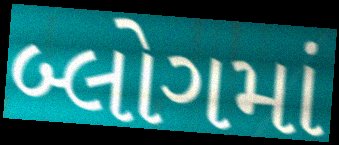
બ્લોગમાં